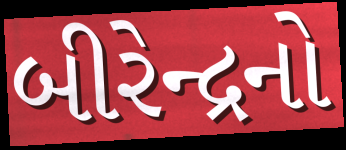
બીરેન્દ્રનો